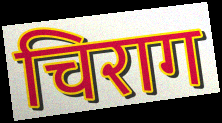
चिराग